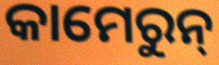
କାମେରୁନ୍